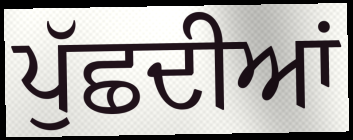
ਪੁੱਛਦੀਆਂ